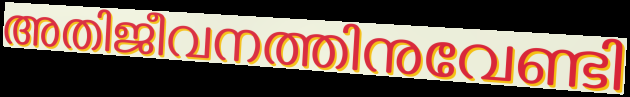
അതിജീവനത്തിനുവേണ്ടി